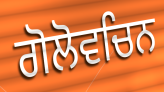
ਗੋਲੋਵਚਿਨ